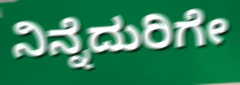
ನಿನ್ನೆದುರಿಗೇ